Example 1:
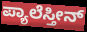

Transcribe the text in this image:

ಪ್ಯಾಲೆಸ್ತೀನ್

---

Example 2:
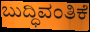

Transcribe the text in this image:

ಬುದ್ಧಿವಂತಿಕೆ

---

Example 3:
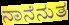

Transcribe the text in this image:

ನಾನೆನುತ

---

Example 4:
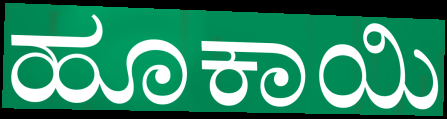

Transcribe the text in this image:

ಹೂಕಾಯಿ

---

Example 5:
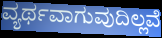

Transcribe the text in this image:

ವ್ಯರ್ಥವಾಗುವುದಿಲ್ಲವೆ